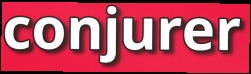
conjurer